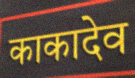
काकादेव